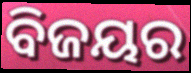
ବିଜୟର